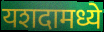
यशदामध्ये